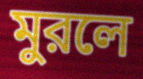
মুরলে